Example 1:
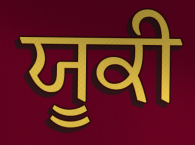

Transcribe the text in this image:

ਯੂਕੀ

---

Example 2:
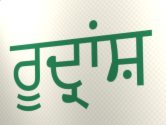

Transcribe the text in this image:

ਰੂਦ੍ਰਾਂਸ਼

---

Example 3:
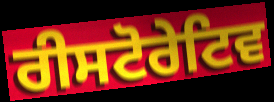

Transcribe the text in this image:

ਰੀਸਟੋਰੇਟਿਵ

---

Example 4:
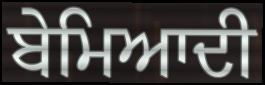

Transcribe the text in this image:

ਬੇਮਿਆਦੀ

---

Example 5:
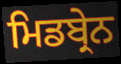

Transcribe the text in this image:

ਮਿਡਬ੍ਰੇਨ